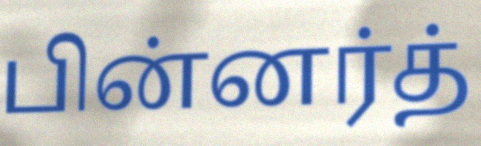
பின்னர்த்